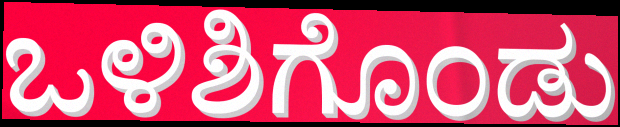
ಒಳಿಶಿಗೊಂಡು